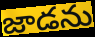
జాడను